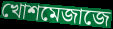
খোশমেজাজে